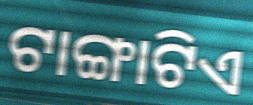
ଟାଙ୍ଗାଟିଏ